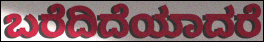
ಬರೆದಿದೆಯಾದರೆ